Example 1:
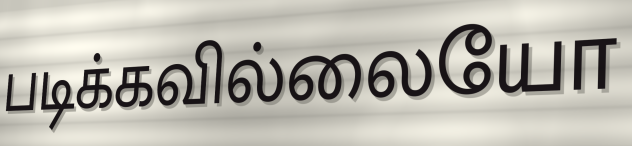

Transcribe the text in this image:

படிக்கவில்லையோ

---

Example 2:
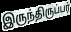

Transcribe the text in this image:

இருந்திருப்பர்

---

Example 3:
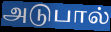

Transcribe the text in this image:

அடுபால்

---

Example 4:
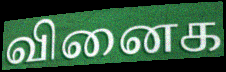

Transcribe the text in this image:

வினைக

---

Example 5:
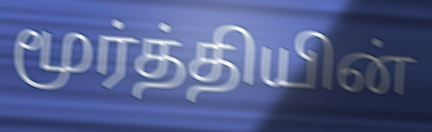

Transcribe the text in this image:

மூர்த்தியின்